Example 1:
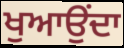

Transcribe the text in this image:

ਖੁਆਉਂਦਾ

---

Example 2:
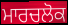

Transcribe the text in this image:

ਮਾਰਚਲੋਕ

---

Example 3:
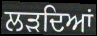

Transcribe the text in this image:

ਲੜਦਿਆਂ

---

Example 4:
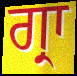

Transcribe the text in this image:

ਗ੍ਰਾ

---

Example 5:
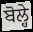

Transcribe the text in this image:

ਬੋਲ੍ਹੇ